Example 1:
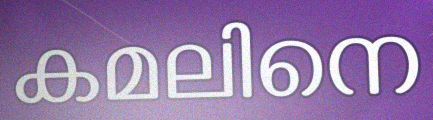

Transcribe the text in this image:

കമലിനെ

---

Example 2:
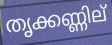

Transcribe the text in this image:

തൃക്കണ്ണില്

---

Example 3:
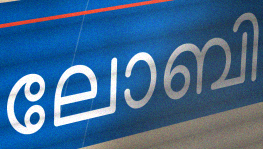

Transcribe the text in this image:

ലോബി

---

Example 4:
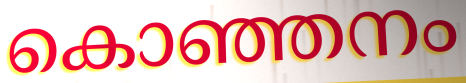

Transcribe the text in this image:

കൊഞ്ഞനം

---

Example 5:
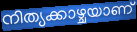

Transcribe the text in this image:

നിത്യക്കാഴ്ചയാണ്